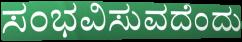
ಸಂಭವಿಸುವದೆಂದು